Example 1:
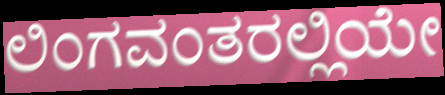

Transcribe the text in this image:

ಲಿಂಗವಂತರಲ್ಲಿಯೇ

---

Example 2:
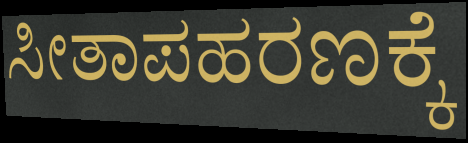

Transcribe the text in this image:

ಸೀತಾಪಹರಣಕ್ಕೆ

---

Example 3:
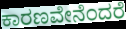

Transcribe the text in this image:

ಕಾರಣವೇನೆಂದರೆ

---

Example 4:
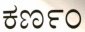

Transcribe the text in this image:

ಕರ್ಣಂ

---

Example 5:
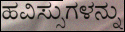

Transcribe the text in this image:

ಹವಿಸ್ಸುಗಳನ್ನು